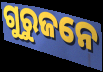
ଗୁରୁଜନେ